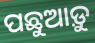
ପଛୁଆଡ଼ୁ